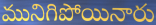
మునిగిపోయినారు